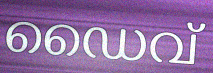
ഡൈവ്